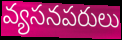
వ్యసనపరులు